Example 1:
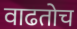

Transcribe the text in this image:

वाढतोच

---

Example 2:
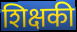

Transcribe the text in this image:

शिक्षकी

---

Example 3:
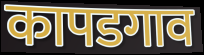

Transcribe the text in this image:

कापडगाव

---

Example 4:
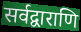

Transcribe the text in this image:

सर्वद्वाराणि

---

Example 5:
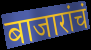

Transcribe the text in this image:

बाजारांचं